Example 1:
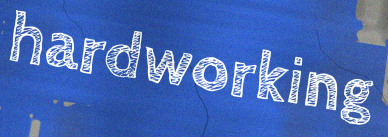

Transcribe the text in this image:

hardworking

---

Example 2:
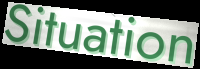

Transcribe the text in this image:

Situation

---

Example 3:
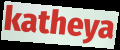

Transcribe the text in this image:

katheya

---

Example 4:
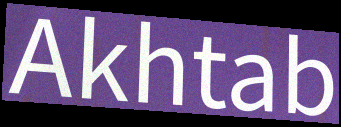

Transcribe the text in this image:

Akhtab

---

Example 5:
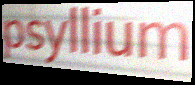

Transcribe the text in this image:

psyllium